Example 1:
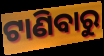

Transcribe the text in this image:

ଟାଣିବାରୁ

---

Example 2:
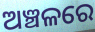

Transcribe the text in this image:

ଅଞ୍ଚଳରେ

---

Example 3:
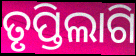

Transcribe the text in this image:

ତୃପ୍ତିଲାଗି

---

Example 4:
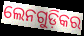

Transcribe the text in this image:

ଲେନଗୁଡ଼ିକର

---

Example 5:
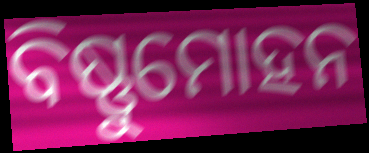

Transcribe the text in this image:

ବିଷ୍ଣୁମୋହନ